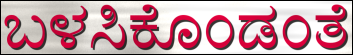
ಬಳಸಿಕೊಂಡಂತೆ